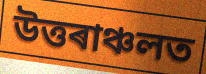
উত্তৰাঞ্চলত